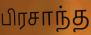
பிரசாந்த